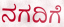
ನಗದಿಗೆ